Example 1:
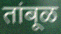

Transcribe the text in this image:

तांबूळ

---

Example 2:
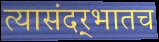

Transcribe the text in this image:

त्यासंदर्भातच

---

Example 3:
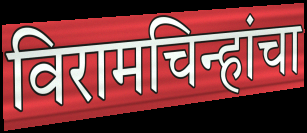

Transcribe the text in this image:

विरामचिन्हांचा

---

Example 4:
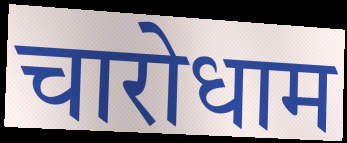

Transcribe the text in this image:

चारोधाम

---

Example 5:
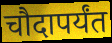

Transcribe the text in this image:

चौदापर्यंत